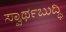
ಸ್ವಾರ್ಥಬುದ್ಧಿ